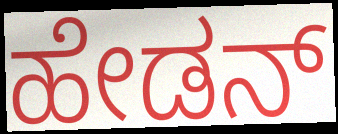
ಹೇಡನ್